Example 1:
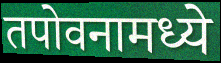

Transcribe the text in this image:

तपोवनामध्ये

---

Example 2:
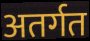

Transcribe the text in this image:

अतर्गत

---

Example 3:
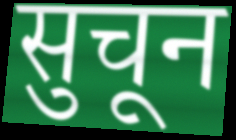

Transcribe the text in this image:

सुचून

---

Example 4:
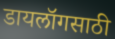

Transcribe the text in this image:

डायलॉगसाठी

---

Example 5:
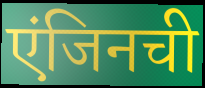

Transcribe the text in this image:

एंजिनची